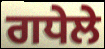
ਗਧੇਲੇ